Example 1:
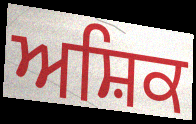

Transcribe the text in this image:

ਅਸ਼ਿਕ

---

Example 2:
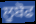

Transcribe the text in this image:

ਲੂਬੋਫ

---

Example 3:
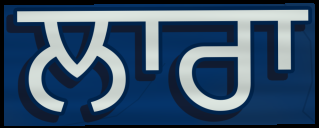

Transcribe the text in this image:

ਲਾਰਾ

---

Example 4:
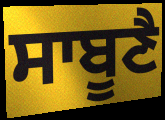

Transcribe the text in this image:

ਸਾਬੂਣੈ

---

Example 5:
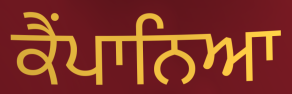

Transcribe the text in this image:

ਕੈਂਪਾਨਿਆ